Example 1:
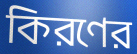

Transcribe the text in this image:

কিরণের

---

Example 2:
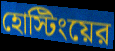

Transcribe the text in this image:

হোস্টিংয়ের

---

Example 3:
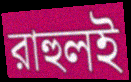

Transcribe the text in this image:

রাহুলই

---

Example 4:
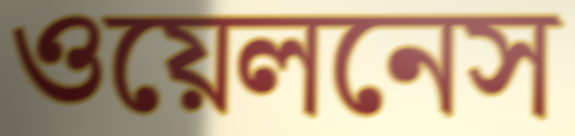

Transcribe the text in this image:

ওয়েলনেস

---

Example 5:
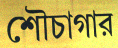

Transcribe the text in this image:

শৌচাগার